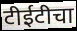
टीईटीचा